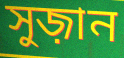
সুজ়ান